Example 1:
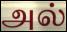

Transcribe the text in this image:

அல்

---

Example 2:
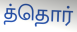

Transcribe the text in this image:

த்தொர்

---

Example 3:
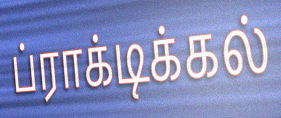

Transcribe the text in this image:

ப்ராக்டிக்கல்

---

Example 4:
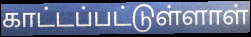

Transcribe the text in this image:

காட்டப்பட்டுள்ளாள்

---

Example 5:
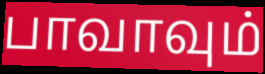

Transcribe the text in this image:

பாவாவும்